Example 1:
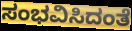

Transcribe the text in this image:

ಸಂಭವಿಸಿದಂತೆ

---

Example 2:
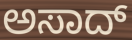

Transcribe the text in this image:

ಅಸಾದ್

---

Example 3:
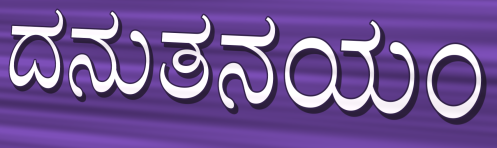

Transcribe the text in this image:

ದನುತನಯಂ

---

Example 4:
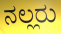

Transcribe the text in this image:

ನಲ್ಲರು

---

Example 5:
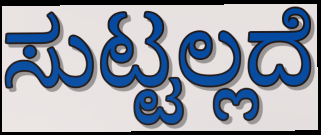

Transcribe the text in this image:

ಸುಟ್ಟಲ್ಲದೆ